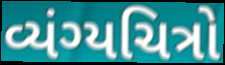
વ્યંગ્યચિત્રો